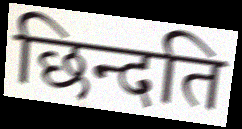
छिन्दति